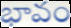
భావం